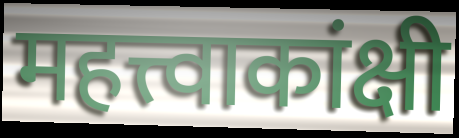
महत्त्वाकांक्षी